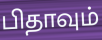
பிதாவும்